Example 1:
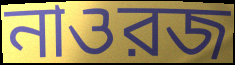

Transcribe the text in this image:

নাওরজ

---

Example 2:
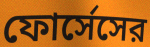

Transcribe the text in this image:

ফোর্সেসের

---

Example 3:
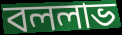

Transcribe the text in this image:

বললাভ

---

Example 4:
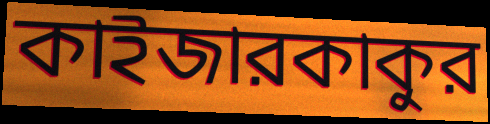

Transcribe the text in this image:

কাইজারকাকুর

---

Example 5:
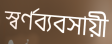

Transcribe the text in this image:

স্বর্ণব্যবসায়ী